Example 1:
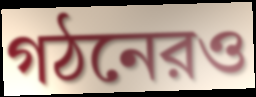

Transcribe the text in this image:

গঠনেরও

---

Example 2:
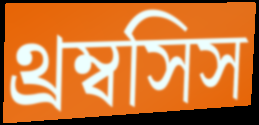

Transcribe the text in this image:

থ্রম্বসিস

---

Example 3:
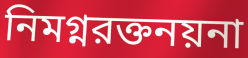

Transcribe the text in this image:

নিমগ্নরক্তনয়না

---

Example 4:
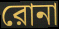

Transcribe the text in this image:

রোনা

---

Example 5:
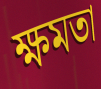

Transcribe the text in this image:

ক্ষমতা